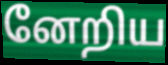
னேறிய